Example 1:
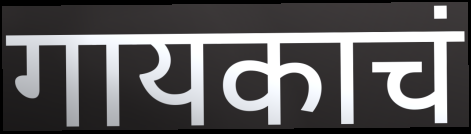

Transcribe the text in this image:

गायकाचं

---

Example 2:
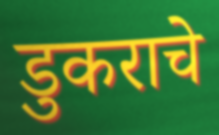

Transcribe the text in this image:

डुकराचे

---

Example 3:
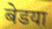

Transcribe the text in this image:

बेडया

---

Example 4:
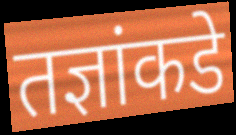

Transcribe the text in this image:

तज्ञांकडे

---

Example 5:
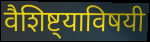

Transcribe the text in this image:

वैशिष्ट्याविषयी